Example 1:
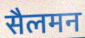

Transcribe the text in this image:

सैलमन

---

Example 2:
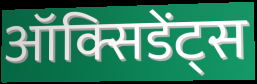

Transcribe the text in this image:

ऑक्सिडेंट्स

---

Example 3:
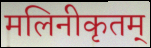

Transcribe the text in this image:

मलिनीकृतम्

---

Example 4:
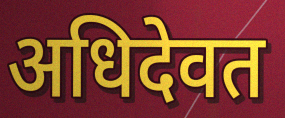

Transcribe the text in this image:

अधिदेवत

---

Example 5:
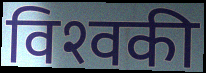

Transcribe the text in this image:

विश्वकी